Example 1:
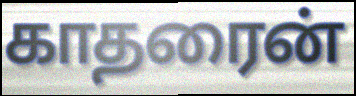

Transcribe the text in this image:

காதரைன்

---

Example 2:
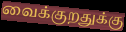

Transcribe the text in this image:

வைக்குறதுக்கு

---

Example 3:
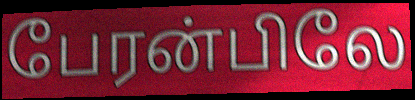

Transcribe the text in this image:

பேரன்பிலே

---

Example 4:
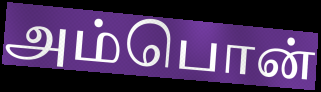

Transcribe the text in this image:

அம்பொன்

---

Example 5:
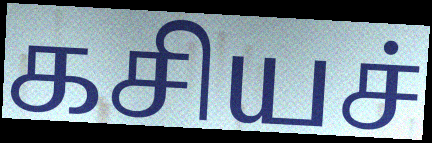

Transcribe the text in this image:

கசியச்